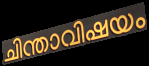
ചിന്താവിഷയം